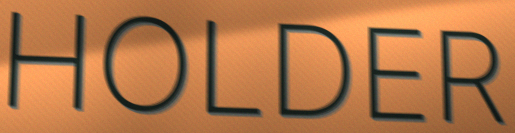
HOLDER